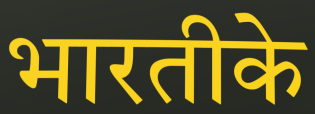
भारतीके